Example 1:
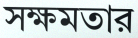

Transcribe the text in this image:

সক্ষমতার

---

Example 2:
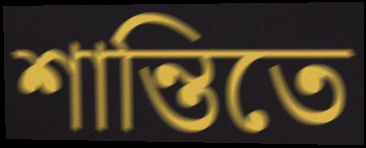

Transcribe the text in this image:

শান্তিতে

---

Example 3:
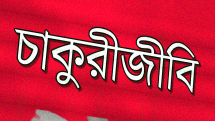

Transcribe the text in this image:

চাকুরীজীবি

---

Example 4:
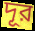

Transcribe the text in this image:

দূর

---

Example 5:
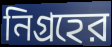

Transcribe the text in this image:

নিগ্রহের